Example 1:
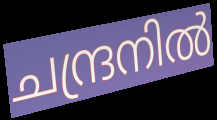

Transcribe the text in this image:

ചന്ദ്രനിൽ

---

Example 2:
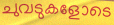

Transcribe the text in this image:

ചുവടുകളോടെ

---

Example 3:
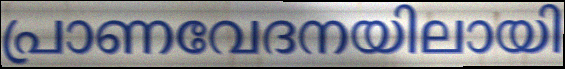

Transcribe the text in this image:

പ്രാണവേദനയിലായി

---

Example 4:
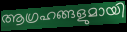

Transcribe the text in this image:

ആഗ്രഹങ്ങളുമായി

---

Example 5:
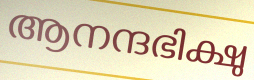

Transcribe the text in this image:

ആനന്ദഭിക്ഷു